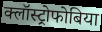
क्लॉस्ट्रोफोबिया